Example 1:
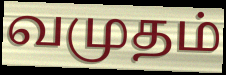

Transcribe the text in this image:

வமுதம்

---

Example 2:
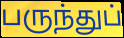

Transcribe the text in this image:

பருந்துப்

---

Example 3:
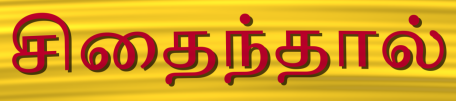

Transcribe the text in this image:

சிதைந்தால்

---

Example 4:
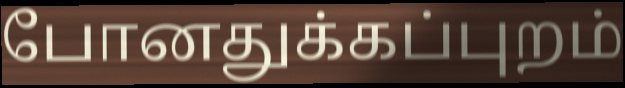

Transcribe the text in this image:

போனதுக்கப்புறம்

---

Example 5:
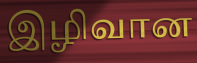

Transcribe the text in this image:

இழிவான